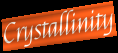
Crystallinity